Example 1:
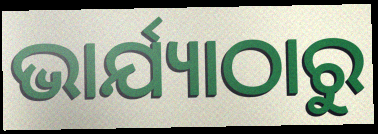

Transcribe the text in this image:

ଭାର୍ଯ୍ୟାଠାରୁ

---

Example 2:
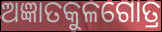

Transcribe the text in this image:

ଅଜ୍ଞାତକୁଳଗୋତ୍ର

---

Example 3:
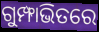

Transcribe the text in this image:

ଗୁମ୍ଫାଭିତରେ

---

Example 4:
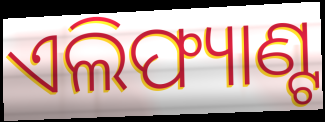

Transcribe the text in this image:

ଏଲିଫ୍ୟାଣ୍ଟ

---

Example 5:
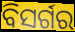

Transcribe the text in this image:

ବିସର୍ଗର